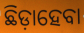
ଛିଡ଼ାହେବା